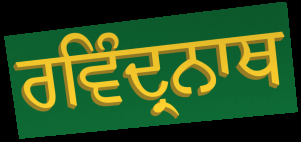
ਰਵਿੰਦ੍ਰਨਾਥ